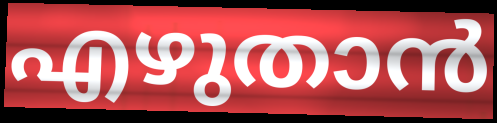
എഴുതാൻ